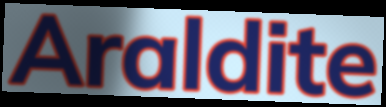
Araldite